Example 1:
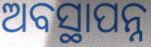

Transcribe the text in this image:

ଅବସ୍ଥାପନ୍ନ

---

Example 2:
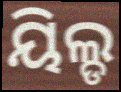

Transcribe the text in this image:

ୟିଲ୍ଡ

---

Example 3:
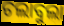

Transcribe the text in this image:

ଚଲାବୁଲା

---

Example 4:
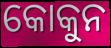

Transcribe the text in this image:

କୋକୁନ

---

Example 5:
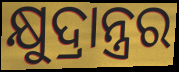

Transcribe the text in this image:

କ୍ଷୁଦ୍ରାନ୍ତ୍ରର